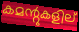
കമന്റുകളില്